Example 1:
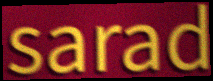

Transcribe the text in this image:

sarad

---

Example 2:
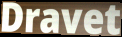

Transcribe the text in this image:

Dravet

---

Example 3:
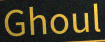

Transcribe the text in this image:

Ghoul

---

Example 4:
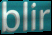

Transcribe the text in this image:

blir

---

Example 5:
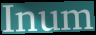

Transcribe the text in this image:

Inum